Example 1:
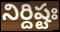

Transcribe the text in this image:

నిర్దిష్టః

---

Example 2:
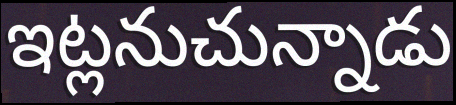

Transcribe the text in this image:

ఇట్లనుచున్నాడు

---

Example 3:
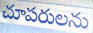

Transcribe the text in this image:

చూపరులను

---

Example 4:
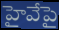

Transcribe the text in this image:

హైవేపై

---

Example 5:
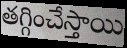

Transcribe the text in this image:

తగ్గించేస్తాయి